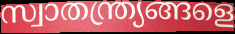
സ്വാതന്ത്ര്യങ്ങളെ